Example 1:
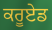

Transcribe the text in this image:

ਕਰੂਏਡ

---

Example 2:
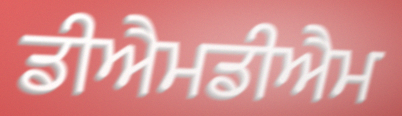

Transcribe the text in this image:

ਡੀਐਮਡੀਐਮ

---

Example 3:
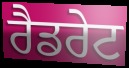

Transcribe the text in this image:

ਰੈਡਰੇਟ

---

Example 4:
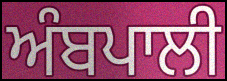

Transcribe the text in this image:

ਅੰਬਪਾਲੀ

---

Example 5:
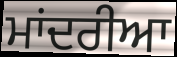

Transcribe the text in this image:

ਮਾਂਦਰੀਆ